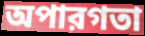
অপারগতা